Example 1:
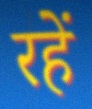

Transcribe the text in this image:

रहें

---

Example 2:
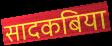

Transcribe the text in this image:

सादकबिया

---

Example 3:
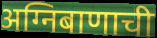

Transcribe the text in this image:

अग्निबाणाची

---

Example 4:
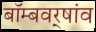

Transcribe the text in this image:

बॉम्बवर्षांव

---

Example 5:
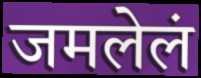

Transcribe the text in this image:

जमलेलं